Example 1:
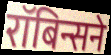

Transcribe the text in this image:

रॉबिन्सने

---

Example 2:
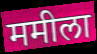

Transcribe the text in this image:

ममीला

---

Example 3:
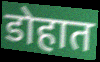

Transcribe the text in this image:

डोहात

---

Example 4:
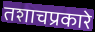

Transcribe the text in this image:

तशाचप्रकारे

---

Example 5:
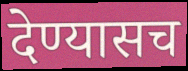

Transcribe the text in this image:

देण्यासच